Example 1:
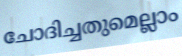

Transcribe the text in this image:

ചോദിച്ചതുമെല്ലാം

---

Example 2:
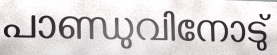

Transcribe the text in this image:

പാണ്ഡുവിനോടു്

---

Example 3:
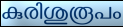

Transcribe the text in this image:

കുരിശുരൂപം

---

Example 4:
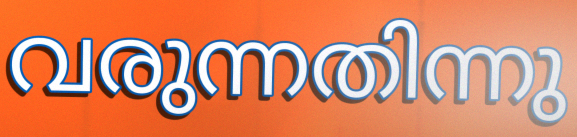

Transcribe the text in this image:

വരുന്നതിന്നു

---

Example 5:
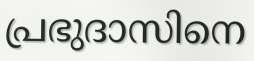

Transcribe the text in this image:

പ്രഭുദാസിനെ